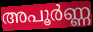
അപൂർണ്ണ